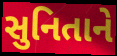
સુનિતાને